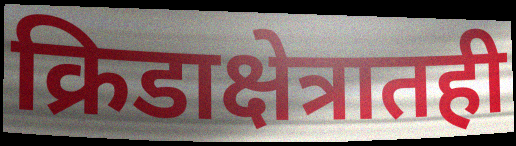
क्रिडाक्षेत्रातही